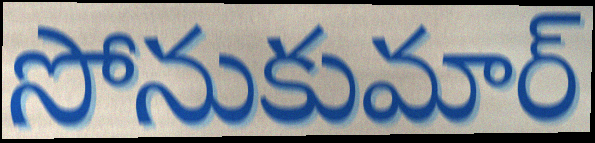
సోనుకుమార్